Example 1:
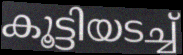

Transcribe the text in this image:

കൂട്ടിയടച്ച്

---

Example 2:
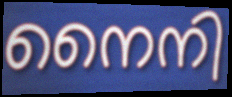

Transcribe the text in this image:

നൈനി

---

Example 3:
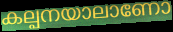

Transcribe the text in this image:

കല്പനയാലാണോ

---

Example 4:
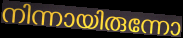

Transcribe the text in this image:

നിന്നായിരുന്നോ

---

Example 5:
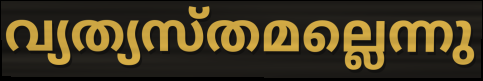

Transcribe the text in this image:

വ്യത്യസ്തമല്ലെന്നു